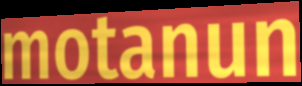
motanun